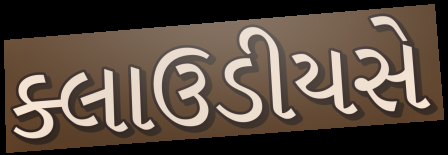
ક્લાઉડીયસે